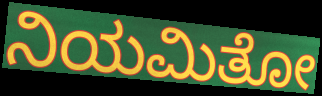
ನಿಯಮಿತೋ